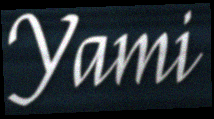
Yami